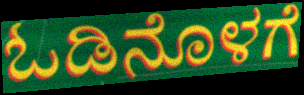
ಓಡಿನೊಳಗೆ